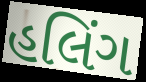
હલિંગ